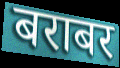
बराबर